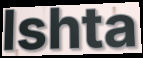
Ishta